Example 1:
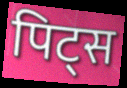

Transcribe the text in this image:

पिट्स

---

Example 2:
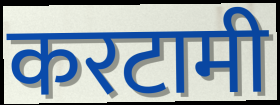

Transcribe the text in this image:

करटामी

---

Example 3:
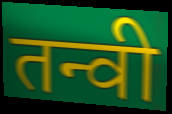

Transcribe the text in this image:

तन्वी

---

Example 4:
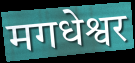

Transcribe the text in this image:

मगधेश्वर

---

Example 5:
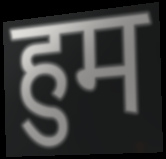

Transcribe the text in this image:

हुम